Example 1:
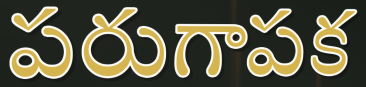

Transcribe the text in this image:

పరుగాపక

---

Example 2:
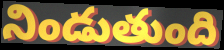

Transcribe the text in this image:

నిండుతుంది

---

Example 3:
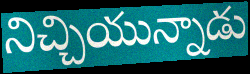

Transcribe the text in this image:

నిచ్చియున్నాడు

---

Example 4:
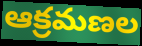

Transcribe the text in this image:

ఆక్రమణల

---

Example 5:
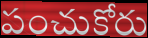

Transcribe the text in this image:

పంచుకోరు